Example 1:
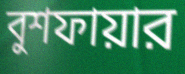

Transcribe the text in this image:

বুশফায়ার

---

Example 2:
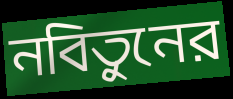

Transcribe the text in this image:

নবিতুনের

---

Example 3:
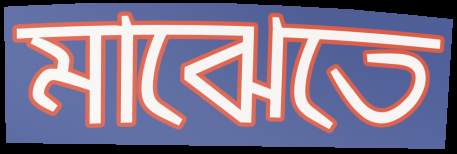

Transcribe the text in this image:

মাঝেতে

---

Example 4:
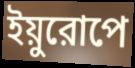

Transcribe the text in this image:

ইয়ুরোপে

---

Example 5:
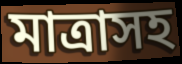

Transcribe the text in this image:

মাত্রাসহ